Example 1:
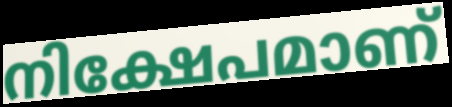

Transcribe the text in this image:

നിക്ഷേപമാണ്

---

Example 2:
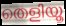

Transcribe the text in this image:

തെളിയൂ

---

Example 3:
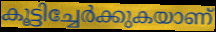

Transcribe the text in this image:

കൂട്ടിച്ചേർക്കുകയാണ്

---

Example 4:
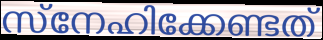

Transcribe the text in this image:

സ്‌നേഹിക്കേണ്ടത്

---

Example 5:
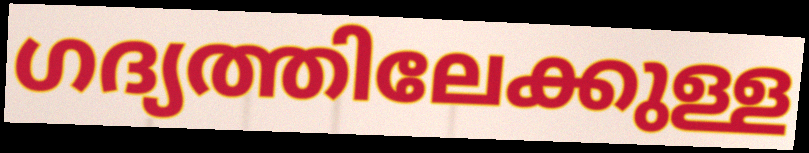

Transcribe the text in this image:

ഗദ്യത്തിലേക്കുള്ള